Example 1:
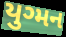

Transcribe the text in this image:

યુગ્મન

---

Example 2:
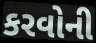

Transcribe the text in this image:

કરવોની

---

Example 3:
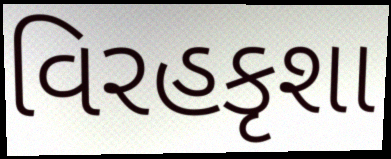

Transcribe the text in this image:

વિરહકૃશા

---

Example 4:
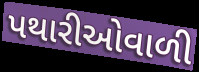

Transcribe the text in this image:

પથારીઓવાળી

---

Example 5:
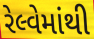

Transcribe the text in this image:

રેલ્વેમાંથી